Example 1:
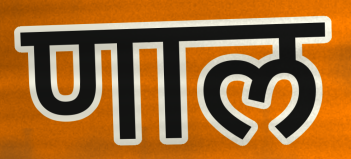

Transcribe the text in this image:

णाल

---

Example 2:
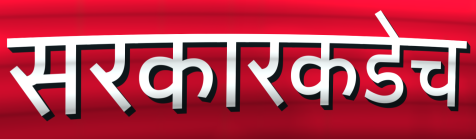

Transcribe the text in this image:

सरकारकडेच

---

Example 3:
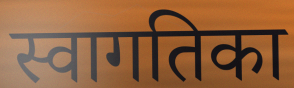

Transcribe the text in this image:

स्वागतिका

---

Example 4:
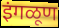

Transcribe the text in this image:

इंगळूण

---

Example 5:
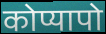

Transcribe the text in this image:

कोप्यापो